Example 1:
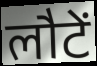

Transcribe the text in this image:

लौटें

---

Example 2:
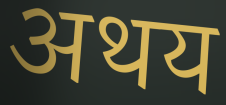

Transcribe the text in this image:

अथय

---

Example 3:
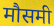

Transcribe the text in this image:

मौसमी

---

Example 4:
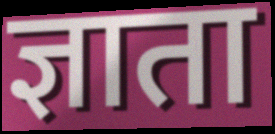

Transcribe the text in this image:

ज्ञाता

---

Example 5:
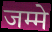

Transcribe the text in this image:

जम्मे